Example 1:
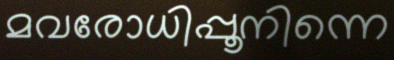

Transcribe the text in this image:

മവരോധിപ്പൂനിന്നെ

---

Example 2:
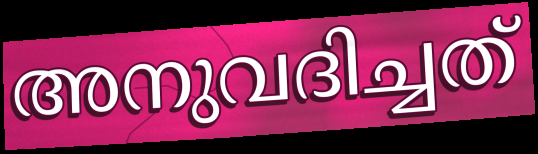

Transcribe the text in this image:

അനുവദിച്ചത്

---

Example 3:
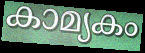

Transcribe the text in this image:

കാമ്യകം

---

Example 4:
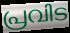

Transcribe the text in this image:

പ്രവിട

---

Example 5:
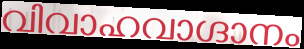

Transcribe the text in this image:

വിവാഹവാഗ്ദാനം